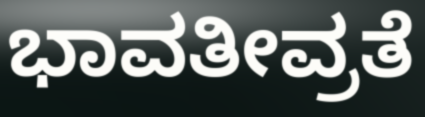
ಭಾವತೀವ್ರತೆ